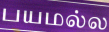
பயமல்ல